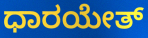
ಧಾರಯೇತ್